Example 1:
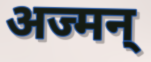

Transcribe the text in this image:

अज्मन्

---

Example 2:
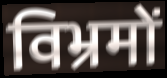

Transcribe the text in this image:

विभ्रमों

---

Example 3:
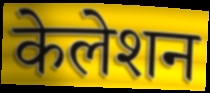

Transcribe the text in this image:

केलेशन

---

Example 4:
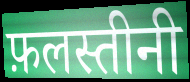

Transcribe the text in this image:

फ़लस्तीनी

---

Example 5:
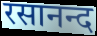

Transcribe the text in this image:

रसानन्द